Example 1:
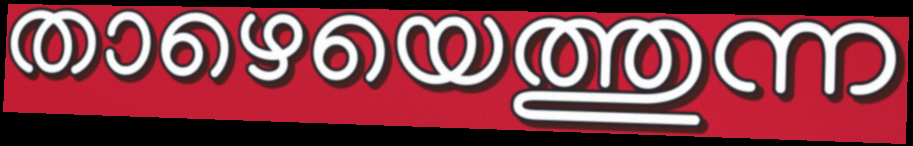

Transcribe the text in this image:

താഴെയെത്തുന്ന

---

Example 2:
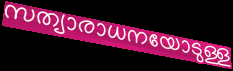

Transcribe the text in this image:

സത്യാരാധനയോടുള്ള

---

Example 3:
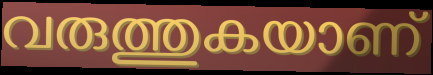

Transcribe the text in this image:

വരുത്തുകയാണ്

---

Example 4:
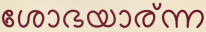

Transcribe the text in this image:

ശോഭയാര്ന്ന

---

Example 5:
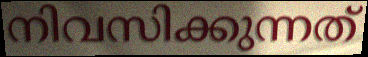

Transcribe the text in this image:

നിവസിക്കുന്നത്